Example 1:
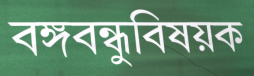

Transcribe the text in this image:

বঙ্গবন্ধুবিষয়ক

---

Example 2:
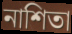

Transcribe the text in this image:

নাশিতা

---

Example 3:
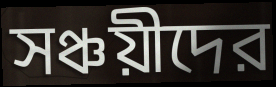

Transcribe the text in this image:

সঞ্চয়ীদের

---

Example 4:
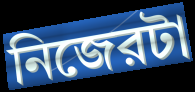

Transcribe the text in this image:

নিজেরটা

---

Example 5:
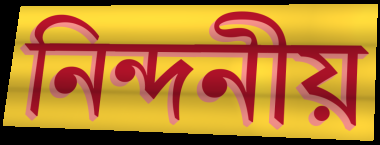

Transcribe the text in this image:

নিন্দনীয়